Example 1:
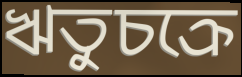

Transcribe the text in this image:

ঋতুচক্রে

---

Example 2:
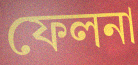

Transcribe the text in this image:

ফেলনা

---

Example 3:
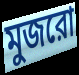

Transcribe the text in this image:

মুজরো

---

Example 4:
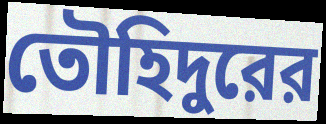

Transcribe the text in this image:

তৌহিদুরের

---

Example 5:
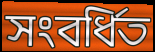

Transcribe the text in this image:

সংবর্ধিত